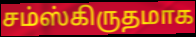
சம்ஸ்கிருதமாக